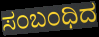
ಸಂಬಂಧಿದ